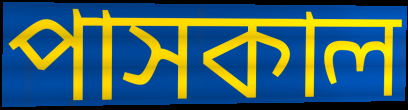
পাসকাল